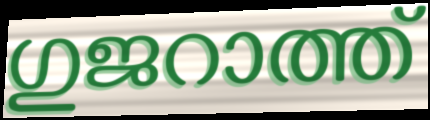
ഗുജറാത്ത്